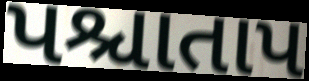
પશ્ચાતાપ